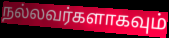
நல்லவர்களாகவும்